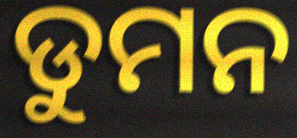
ଡୁମନ